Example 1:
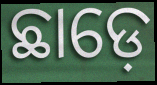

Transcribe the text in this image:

ଛାଡ଼େ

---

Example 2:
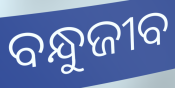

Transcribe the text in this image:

ବନ୍ଧୁଜୀବ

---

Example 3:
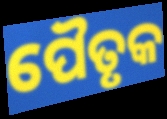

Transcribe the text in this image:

ପୈତୃକ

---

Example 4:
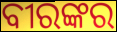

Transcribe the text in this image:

ବୀରଙ୍କର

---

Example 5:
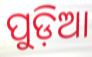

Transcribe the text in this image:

ପୁଡ଼ିଆ